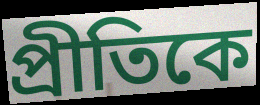
প্রীতিকে